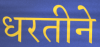
धरतीने